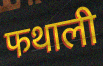
फथाली